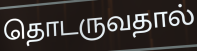
தொடருவதால்